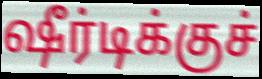
ஷீர்டிக்குச்